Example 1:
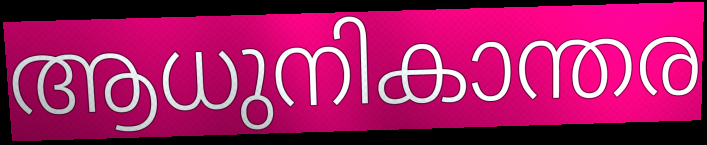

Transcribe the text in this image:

ആധുനികാന്തര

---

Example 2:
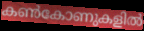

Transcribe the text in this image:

കൺകോണുകളിൽ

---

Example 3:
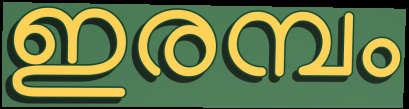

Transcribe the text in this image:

ഇരമ്പം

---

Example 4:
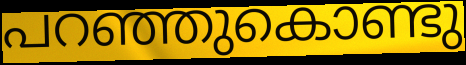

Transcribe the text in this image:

പറഞ്ഞുകൊണ്ടു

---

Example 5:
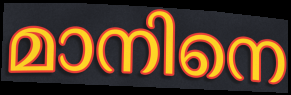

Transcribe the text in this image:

മാനിനെ